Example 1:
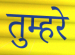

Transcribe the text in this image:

तुम्हरे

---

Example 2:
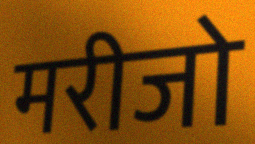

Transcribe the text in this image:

मरीजो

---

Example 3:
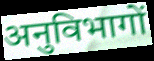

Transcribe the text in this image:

अनुविभागों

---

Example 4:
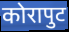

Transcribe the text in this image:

कोरापुट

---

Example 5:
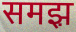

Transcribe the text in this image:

समझ़